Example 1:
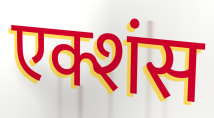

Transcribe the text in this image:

एक्शंस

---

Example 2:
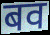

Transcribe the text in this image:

बव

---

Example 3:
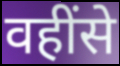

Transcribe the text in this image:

वहींसे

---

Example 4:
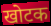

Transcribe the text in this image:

खोटक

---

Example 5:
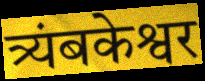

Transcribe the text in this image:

त्र्यंबकेश्वर